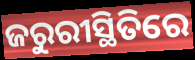
ଜରୁରୀସ୍ଥିତିରେ